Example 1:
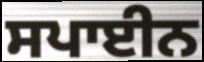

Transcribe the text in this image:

ਸਪਾਈਨ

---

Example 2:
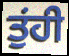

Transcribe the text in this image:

ਤੁਂਹੀ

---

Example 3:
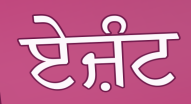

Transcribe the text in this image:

ਏਜ਼ੰਟ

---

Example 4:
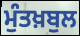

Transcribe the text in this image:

ਮੁੰਤਖ਼ਬੁਲ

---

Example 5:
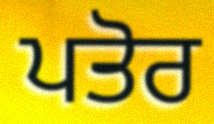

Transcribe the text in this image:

ਪਤੋਰ